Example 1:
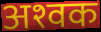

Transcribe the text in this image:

अश्वक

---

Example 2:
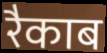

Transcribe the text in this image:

रैकाब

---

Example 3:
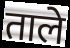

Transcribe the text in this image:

ताले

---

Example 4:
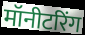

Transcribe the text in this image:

मॉनीटरिंग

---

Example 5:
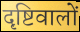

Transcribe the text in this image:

दृष्टिवालों